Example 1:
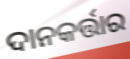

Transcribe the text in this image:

ଦାନକର୍ତ୍ତାର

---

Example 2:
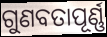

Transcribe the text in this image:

ଗୁଣବତାପୂର୍ଣ୍ଣ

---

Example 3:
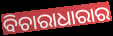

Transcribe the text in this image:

ବିଚାରାଧାରାର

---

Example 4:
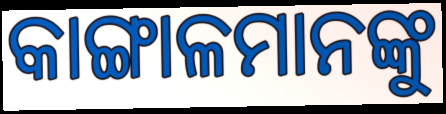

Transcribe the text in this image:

କାଙ୍ଗାଳମାନଙ୍କୁ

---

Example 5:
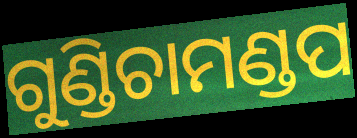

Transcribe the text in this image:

ଗୁଣ୍ଡିଚାମଣ୍ଡପ